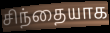
சிந்தையாக